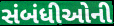
સંબંધીઓની